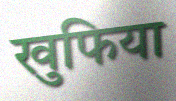
खुफिया